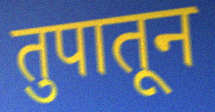
तुपातून